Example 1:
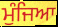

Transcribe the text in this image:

ਮੁੰਜਿਆ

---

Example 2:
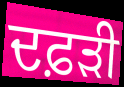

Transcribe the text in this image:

ਦਫ਼ੜੀ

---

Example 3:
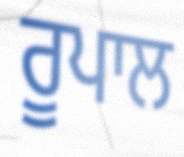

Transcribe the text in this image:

ਰੂਪਾਲ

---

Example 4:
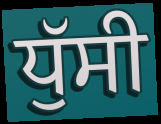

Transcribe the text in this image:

ਧੁੱਸੀ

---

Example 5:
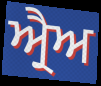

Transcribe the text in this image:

ਅ੍ਰੈਅ